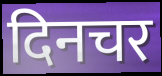
दिनचर